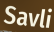
Savli